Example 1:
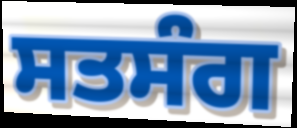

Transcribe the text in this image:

ਸਤਸੰਗ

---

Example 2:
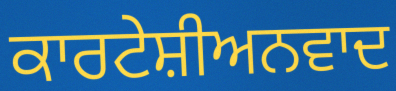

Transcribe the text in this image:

ਕਾਰਟੇਸ਼ੀਅਨਵਾਦ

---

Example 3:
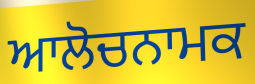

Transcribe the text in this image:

ਆਲੋਚਨਾਮਕ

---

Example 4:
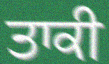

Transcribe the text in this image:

ਤਾਕੀ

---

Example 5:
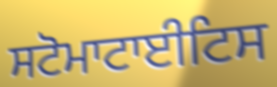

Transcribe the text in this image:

ਸਟੋਮਾਟਾਈਟਿਸ